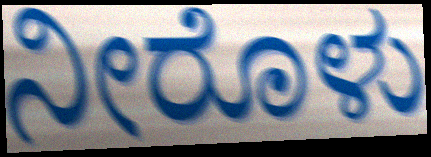
ನೀರೊಳು